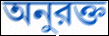
অনুরক্ত